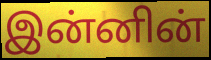
இன்னின்